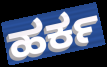
ಹರ್ಕ